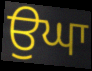
ਉਘਾ